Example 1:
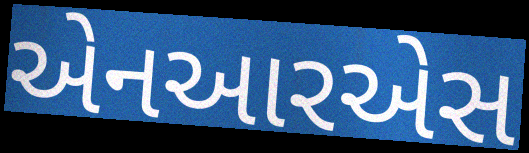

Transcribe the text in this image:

એનઆરએસ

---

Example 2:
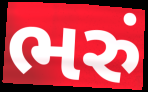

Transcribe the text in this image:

ભરું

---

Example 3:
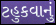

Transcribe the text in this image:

ટહુકવાનું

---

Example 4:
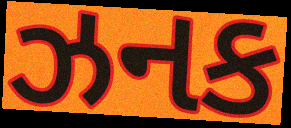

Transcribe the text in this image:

ઝનક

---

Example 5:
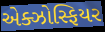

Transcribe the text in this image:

એક્ઝોસ્ફિયર